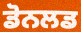
ਡੋਨਲਡ